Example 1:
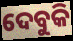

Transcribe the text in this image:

ଦେବୁକି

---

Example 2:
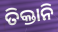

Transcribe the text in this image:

ତିକ୍ତାନି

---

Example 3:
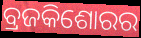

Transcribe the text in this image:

ବ୍ରଜକିଶୋରର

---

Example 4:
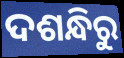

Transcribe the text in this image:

ଦଶନ୍ଧିରୁ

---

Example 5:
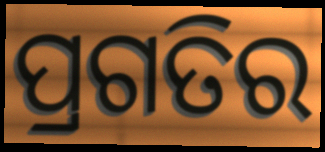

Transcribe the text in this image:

ପ୍ରଗତିର